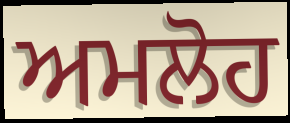
ਅਮਲੋਹ